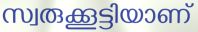
സ്വരുക്കൂട്ടിയാണ്